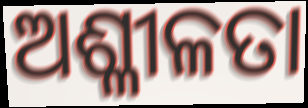
ଅଶ୍ଳୀଳତା